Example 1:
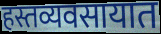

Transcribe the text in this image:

हस्तव्यवसायात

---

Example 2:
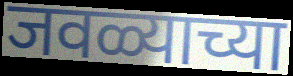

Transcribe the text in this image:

जवळ्याच्या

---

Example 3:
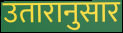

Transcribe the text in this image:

उतारानुसार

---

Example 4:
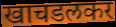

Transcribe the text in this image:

खाचडलकर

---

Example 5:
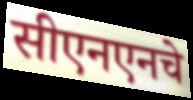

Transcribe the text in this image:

सीएनएनचे